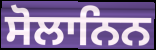
ਸੋਲਾਨਿਨ